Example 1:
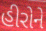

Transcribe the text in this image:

હીરોને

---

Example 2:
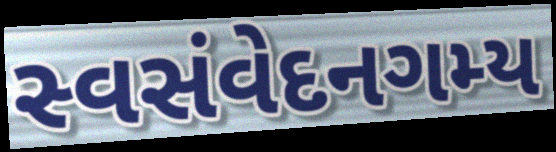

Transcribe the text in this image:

સ્વસંવેદનગમ્ય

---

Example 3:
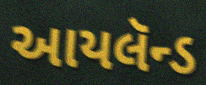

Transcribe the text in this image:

આયલૅન્ડ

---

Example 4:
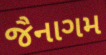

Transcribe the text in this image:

જૈનાગમ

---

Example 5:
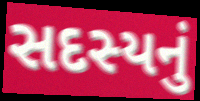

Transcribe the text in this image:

સદસ્યનું